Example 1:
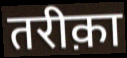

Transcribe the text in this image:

तरीक़ा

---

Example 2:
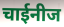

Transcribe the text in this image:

चाईनीज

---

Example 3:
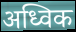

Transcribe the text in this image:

अध्विक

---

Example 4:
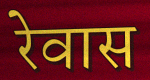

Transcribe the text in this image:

रेवास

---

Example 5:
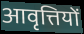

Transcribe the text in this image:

आवृत्तियों